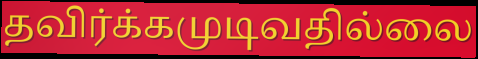
தவிர்க்கமுடிவதில்லை